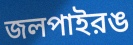
জলপাইরঙ